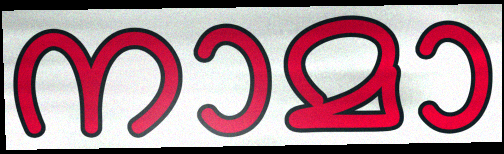
നാമാ